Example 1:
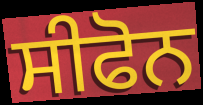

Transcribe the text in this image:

ਸੀਫੋਨ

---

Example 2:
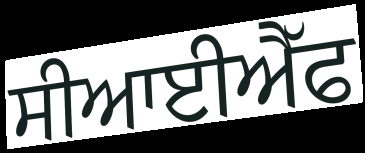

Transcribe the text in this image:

ਸੀਆਈਐੱਫ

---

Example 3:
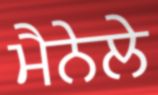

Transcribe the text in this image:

ਮੈਨੇਲੇ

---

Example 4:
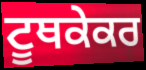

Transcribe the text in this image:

ਟੂਥਕੇਕਰ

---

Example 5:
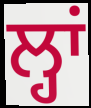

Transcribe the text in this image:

ਲ੍ਹਾਂ